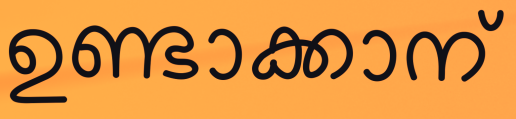
ഉണ്ടാക്കാന്